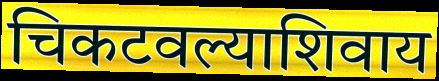
चिकटवल्याशिवाय